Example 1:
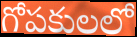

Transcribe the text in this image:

గోపకులలో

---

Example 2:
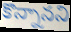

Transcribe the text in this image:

కొన్నానని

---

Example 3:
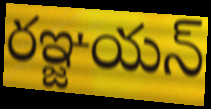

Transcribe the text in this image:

రఞ్జయన్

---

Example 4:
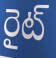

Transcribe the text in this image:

రైట్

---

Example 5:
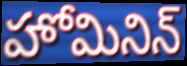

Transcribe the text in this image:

హోమినిన్